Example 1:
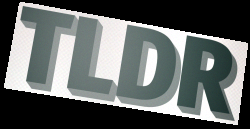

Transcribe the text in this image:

TLDR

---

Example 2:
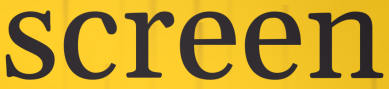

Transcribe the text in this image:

screen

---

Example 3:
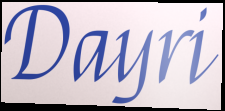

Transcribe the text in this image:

Dayri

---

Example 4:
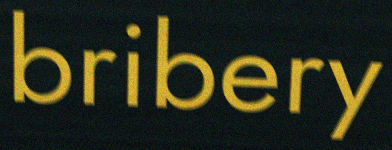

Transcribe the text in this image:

bribery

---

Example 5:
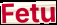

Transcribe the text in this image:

Fetu